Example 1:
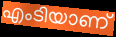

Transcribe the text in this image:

എംടിയാണ്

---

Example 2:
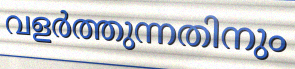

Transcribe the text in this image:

വളർത്തുന്നതിനും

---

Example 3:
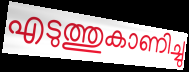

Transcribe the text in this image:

എടുത്തുകാണിച്ചു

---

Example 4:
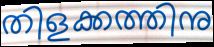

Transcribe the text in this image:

തിളക്കത്തിനു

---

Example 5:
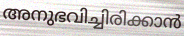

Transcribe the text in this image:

അനുഭവിച്ചിരിക്കാൻ